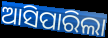
ଆସିପାରିଲା